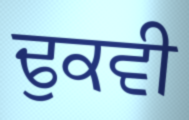
ਢੁਕਵੀ